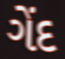
ગેંદ